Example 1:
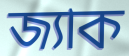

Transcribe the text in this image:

জ্যাক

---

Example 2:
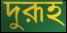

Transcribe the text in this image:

দুরূহ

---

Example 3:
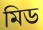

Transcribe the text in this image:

মিড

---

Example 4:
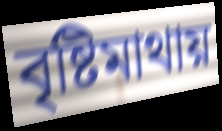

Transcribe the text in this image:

বৃষ্টিমাথায়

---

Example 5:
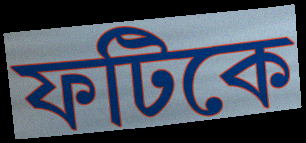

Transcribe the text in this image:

ফটিকে